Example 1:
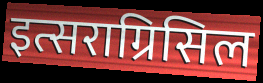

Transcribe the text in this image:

इत्सराग्रिसिल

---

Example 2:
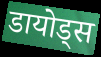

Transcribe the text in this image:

डायोड्स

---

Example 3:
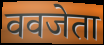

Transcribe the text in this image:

ववजेता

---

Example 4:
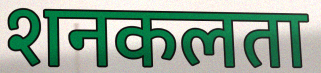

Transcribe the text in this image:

शनकलता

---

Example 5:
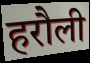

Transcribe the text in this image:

हरौली